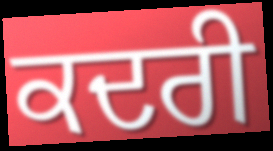
ਕਦਰੀ